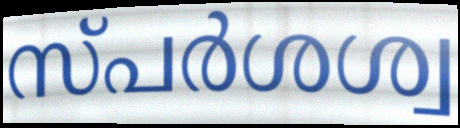
സ്പർശശ്വ